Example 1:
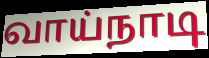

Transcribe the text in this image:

வாய்நாடி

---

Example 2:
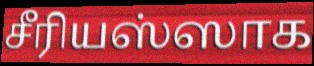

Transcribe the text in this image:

சீரியஸ்ஸாக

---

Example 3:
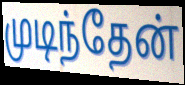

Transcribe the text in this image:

முடிந்தேன்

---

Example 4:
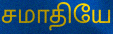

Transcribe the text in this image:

சமாதியே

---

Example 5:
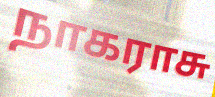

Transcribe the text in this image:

நாகராசு